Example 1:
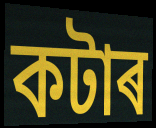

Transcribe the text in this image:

কটাৰ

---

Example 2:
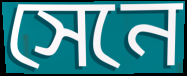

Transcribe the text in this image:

সেনে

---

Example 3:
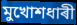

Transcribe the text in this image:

মুখোশধাৰী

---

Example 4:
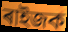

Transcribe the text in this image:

ৰাইজক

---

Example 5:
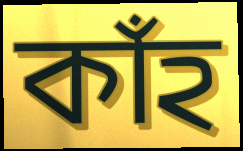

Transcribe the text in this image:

কাঁহ